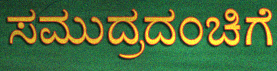
ಸಮುದ್ರದಂಚಿಗೆ